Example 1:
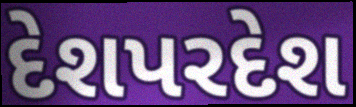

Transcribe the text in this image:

દેશપરદેશ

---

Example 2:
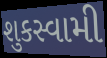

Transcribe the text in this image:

શુકસ્વામી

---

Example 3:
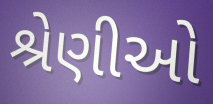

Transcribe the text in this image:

શ્રેણીઓ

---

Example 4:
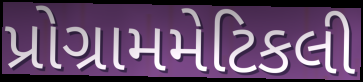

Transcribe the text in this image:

પ્રોગ્રામમેટિકલી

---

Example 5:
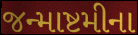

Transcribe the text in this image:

જન્માષ્ટમીના